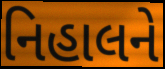
નિહાલને